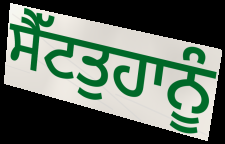
ਸੈੱਟਤੁਹਾਨੂੰ